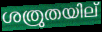
ശത്രുതയില്